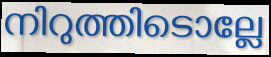
നിറുത്തിടൊല്ലേ